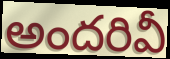
అందరివీ